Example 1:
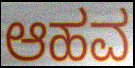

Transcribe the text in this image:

ಆಹವ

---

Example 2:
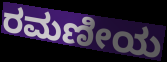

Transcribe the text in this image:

ರಮಣೀಯ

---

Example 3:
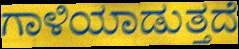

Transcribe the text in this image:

ಗಾಳಿಯಾಡುತ್ತದೆ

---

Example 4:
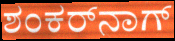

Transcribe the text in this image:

ಶಂಕರ್‌ನಾಗ್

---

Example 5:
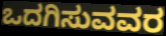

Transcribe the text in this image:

ಒದಗಿಸುವವರ